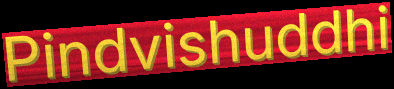
Pindvishuddhi